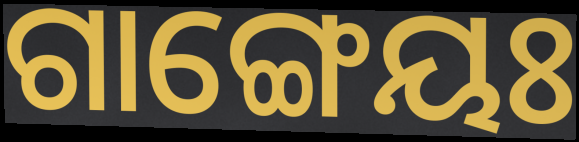
ଗାଙ୍ଗେୟଃ